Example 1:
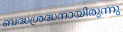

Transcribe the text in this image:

ബദ്ധശ്രദ്ധനായിരുന്നു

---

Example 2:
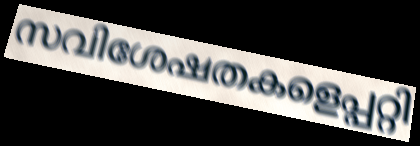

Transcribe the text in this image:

സവിശേഷതകളെപ്പറ്റി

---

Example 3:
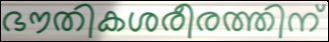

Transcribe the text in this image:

ഭൗതികശരീരത്തിന്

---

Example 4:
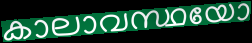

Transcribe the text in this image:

കാലാവസ്ഥയോ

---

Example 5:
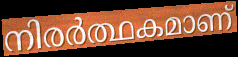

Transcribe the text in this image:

നിരർത്ഥകമാണ്